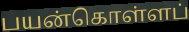
பயன்கொள்ளப்